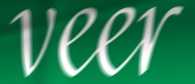
veer